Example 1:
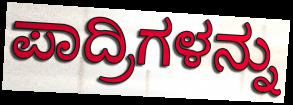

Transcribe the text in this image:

ಪಾದ್ರಿಗಳನ್ನು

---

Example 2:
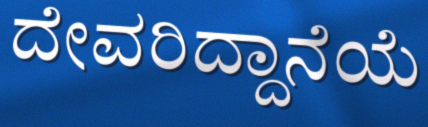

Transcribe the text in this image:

ದೇವರಿದ್ದಾನೆಯೆ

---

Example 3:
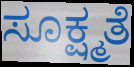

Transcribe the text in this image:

ಸೂಕ್ಷ್ಮತೆ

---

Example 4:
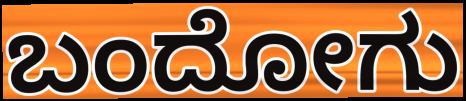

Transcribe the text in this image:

ಬಂದೋಗು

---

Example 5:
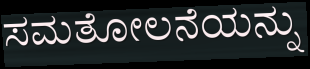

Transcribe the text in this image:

ಸಮತೋಲನೆಯನ್ನು